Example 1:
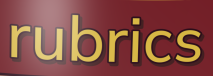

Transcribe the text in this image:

rubrics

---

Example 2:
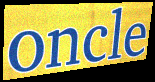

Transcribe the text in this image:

oncle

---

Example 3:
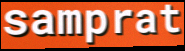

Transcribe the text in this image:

samprat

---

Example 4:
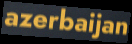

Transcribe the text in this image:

azerbaijan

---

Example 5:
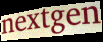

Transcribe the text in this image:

nextgen